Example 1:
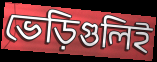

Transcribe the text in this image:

ভেড়িগুলিই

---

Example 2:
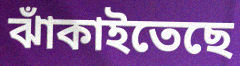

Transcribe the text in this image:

ঝাঁকাইতেছে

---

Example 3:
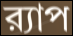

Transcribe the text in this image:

র‍্যাপ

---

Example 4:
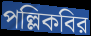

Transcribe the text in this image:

পল্লিকবির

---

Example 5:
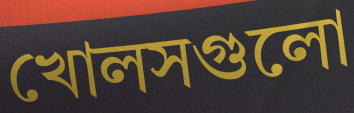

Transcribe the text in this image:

খোলসগুলো